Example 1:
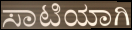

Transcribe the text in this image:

ಸಾಟಿಯಾಗಿ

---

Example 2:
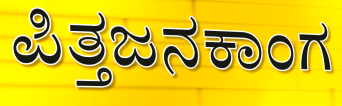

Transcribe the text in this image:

ಪಿತ್ತಜನಕಾಂಗ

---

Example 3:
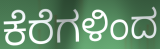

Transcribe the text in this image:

ಕೆರೆಗಳಿಂದ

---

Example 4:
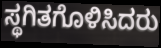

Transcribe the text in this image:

ಸ್ಥಗಿತಗೊಳಿಸಿದರು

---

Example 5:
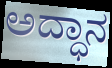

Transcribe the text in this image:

ಅದ್ಧಾನ